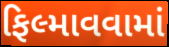
ફિલ્માવવામાં